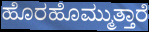
ಹೊರಹೊಮ್ಮುತ್ತಾರೆ